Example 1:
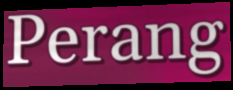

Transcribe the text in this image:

Perang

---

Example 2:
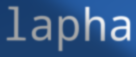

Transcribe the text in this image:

lapha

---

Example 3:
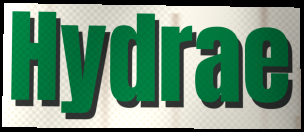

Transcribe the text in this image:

Hydrae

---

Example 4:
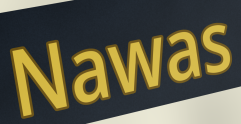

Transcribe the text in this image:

Nawas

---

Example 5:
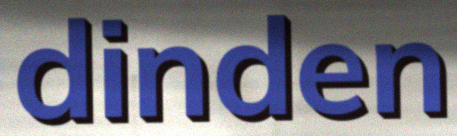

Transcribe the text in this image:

dinden